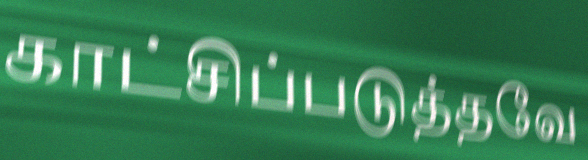
காட்சிப்படுத்தவே